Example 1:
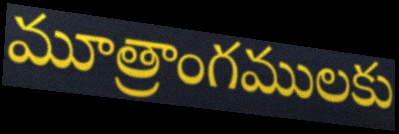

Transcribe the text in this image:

మూత్రాంగములకు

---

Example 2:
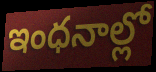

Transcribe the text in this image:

ఇంధనాల్లో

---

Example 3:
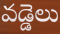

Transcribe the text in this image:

వడ్డెలు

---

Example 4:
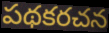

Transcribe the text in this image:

పథకరచన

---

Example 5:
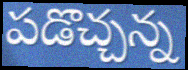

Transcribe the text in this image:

పడొచ్చన్న